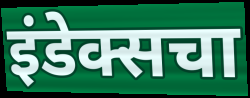
इंडेक्सचा